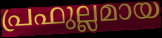
പ്രഫുല്ലമായ